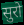
सुरो